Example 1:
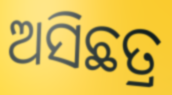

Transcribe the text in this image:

ଅସିଛତ୍ର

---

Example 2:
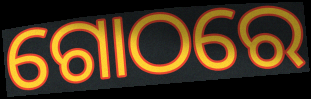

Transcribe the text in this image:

ଗୋଠରେ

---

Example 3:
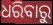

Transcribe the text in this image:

ଧରିବାରୁ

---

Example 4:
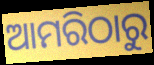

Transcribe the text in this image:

ଆମରିଠାରୁ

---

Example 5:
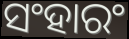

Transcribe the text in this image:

ସଂହାରଂ